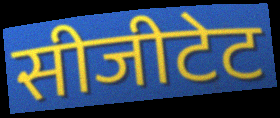
सीजीटेट